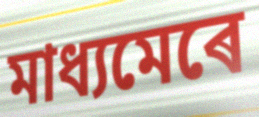
মাধ্যমেৰে